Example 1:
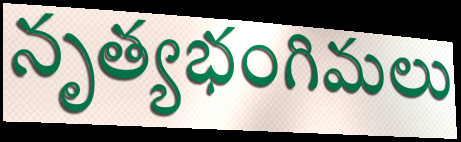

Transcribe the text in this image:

నృత్యభంగిమలు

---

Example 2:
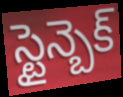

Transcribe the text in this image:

స్టైన్బెక్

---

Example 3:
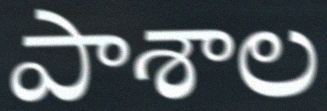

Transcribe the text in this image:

పాశాల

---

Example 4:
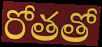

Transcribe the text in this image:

రోతతో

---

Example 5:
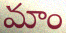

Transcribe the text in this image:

మాం